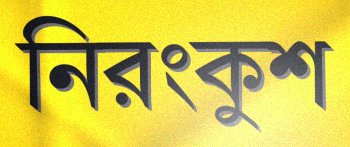
নিরংকুশ